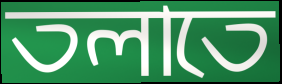
তলাতে